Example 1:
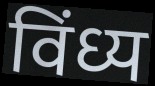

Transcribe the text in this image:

विंध्य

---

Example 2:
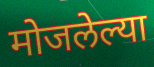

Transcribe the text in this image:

मोजलेल्या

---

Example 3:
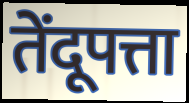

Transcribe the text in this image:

तेंदूपत्ता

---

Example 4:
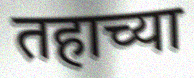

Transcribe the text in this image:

तहाच्या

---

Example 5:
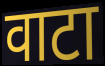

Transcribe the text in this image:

वाटा